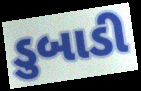
ડુબાડી